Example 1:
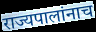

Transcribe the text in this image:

राज्यपालांनाच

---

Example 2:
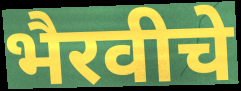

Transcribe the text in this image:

भैरवीचे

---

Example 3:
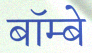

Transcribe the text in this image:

बॉम्बे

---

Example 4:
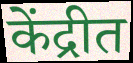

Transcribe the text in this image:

केंद्रीत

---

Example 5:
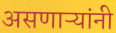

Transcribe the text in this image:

असणाऱ्यांनी